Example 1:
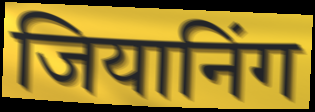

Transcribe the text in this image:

जियानिंग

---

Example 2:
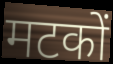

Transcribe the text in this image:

मटकों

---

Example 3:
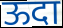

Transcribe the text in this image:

ऊदा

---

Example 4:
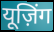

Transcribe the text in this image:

यूज़िंग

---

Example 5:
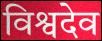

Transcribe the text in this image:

विश्वदेव